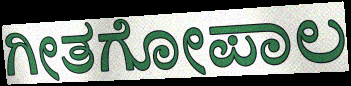
ಗೀತಗೋಪಾಲ